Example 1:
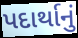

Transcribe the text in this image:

પદાર્થાનું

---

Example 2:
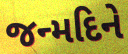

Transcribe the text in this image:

જન્મદિને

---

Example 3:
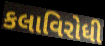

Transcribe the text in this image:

કલાવિરોધી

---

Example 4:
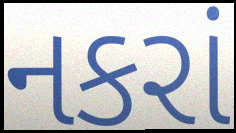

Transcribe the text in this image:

નકરાં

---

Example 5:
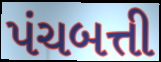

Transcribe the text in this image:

પંચબત્તી